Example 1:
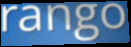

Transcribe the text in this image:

rango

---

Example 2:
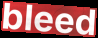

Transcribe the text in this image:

bleed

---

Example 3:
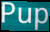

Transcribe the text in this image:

Pup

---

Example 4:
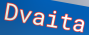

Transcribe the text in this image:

Dvaita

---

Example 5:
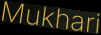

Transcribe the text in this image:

Mukhari